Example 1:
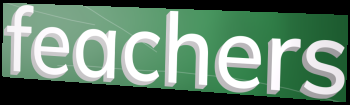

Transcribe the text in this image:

feachers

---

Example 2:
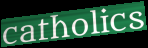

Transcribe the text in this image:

catholics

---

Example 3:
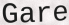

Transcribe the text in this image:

Gare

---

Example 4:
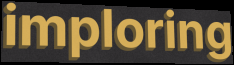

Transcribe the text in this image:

imploring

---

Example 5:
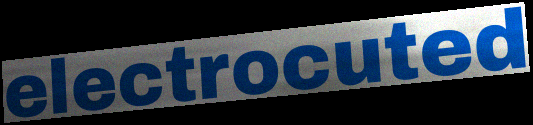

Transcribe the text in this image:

electrocuted